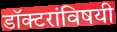
डॉक्टरांविषयी